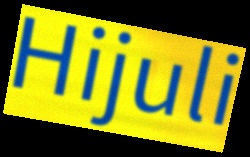
Hijuli